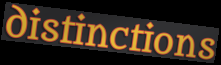
distinctions